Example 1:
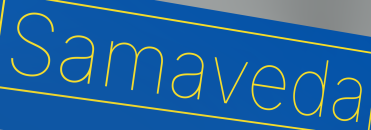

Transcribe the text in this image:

Samaveda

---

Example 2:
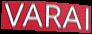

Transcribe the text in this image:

VARAI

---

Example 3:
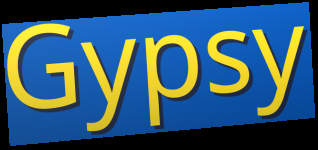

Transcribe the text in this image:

Gypsy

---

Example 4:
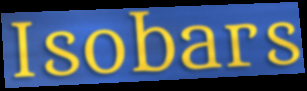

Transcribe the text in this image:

Isobars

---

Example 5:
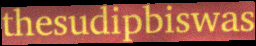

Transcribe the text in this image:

thesudipbiswas